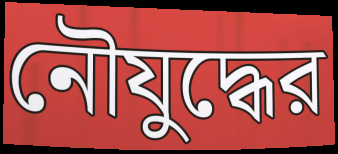
নৌযুদ্ধের